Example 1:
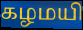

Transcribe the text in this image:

கழமயி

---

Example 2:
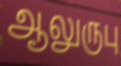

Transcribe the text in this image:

ஆலுருபு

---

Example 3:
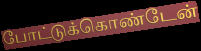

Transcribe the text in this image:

போட்டுக்கொண்டேன்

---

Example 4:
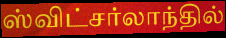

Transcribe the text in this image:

ஸ்விட்சர்லாந்தில்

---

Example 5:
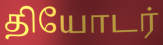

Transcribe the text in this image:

தியோடர்